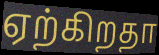
ஏற்கிறதா